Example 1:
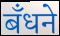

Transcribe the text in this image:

बँधने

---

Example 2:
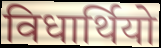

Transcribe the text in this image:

विधार्थियो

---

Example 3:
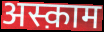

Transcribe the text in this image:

अस्क़ाम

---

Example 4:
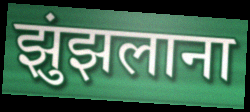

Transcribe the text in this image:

झुंझलाना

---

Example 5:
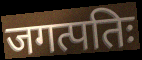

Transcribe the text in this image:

जगत्पतिः